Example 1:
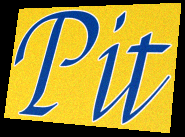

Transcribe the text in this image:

Pit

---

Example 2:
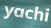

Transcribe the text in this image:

yachi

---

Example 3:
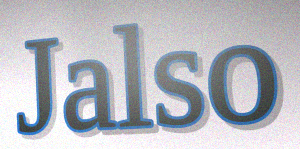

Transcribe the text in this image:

Jalso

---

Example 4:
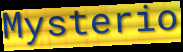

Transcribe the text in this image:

Mysterio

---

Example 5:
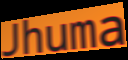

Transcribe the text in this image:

Jhuma